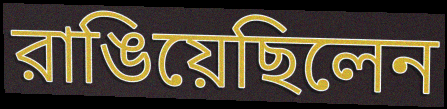
রাঙিয়েছিলেন